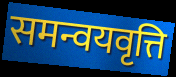
समन्वयवृत्ति